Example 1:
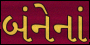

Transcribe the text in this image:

બંનેનાં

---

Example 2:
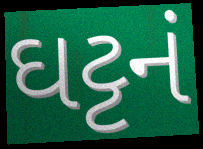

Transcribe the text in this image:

ઘટ્ટનં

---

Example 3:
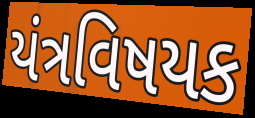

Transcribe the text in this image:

યંત્રવિષયક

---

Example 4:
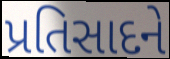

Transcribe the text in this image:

પ્રતિસાદને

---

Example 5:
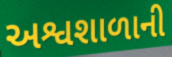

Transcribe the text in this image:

અશ્વશાળાની